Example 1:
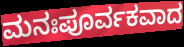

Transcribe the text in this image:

ಮನಃಪೂರ್ವಕವಾದ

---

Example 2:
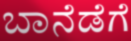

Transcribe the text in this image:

ಬಾನೆಡೆಗೆ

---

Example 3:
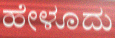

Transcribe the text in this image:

ಹೇಳೂದು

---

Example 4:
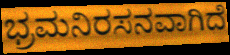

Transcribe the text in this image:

ಭ್ರಮನಿರಸನವಾಗಿದೆ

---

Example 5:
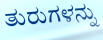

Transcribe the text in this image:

ತುರುಗಳನ್ನು